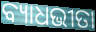
ବ୍ୟାଧଭୀତା